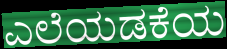
ಎಲೆಯಡಕೆಯ